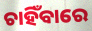
ଚାହିଁବାରେ